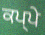
ਕਪ੍ਪੇ